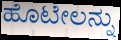
ಹೊಟೇಲನ್ನು